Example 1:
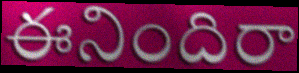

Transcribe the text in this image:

ఈనిందిరా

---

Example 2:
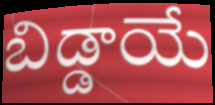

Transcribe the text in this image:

బిడ్డాయే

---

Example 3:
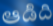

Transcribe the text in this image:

ఆడిది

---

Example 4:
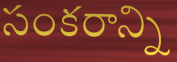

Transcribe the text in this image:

సంకరాన్ని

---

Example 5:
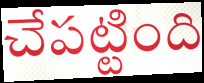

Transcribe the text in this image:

చేపట్టింది